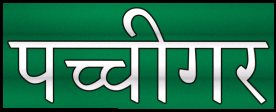
पच्चीगर